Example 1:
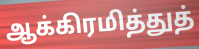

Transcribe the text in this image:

ஆக்கிரமித்துத்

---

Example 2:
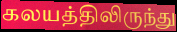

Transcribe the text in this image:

கலயத்திலிருந்து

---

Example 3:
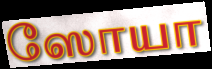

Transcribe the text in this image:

ஸோயா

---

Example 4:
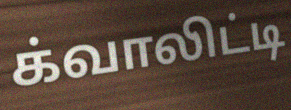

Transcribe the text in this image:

க்வாலிட்டி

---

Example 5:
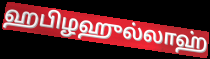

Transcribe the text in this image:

ஹபிழஹுல்லாஹ்